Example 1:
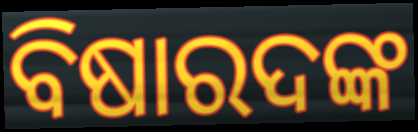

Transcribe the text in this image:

ବିଷାରଦଙ୍କ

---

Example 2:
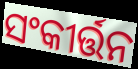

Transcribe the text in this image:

ସଂକୀର୍ତ୍ତନ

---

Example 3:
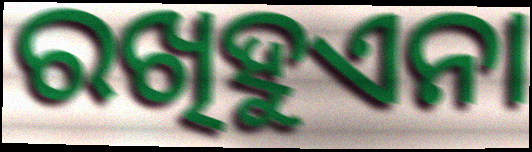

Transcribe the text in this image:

ରଖିହୁଏନା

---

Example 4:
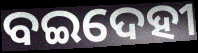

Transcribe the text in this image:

ବଇଦେହୀ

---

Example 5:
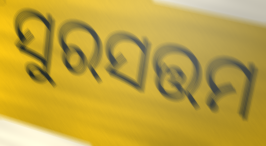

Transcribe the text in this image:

ସୁରସତ୍ତମ